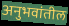
अनुभवांतील